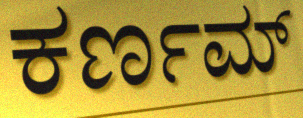
ಕರ್ಣಮ್